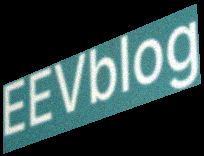
EEVblog